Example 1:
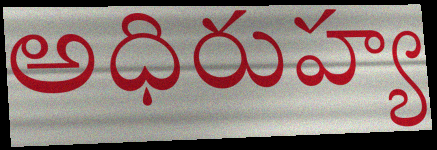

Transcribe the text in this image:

అధిరుహ్య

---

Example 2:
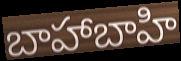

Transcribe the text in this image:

బాహాబాహి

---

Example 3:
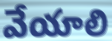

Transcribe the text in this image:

వేయాలి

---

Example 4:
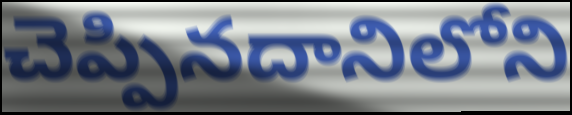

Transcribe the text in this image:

చెప్పినదానిలోని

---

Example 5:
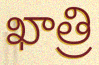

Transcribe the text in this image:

ఖాత్రి